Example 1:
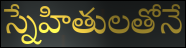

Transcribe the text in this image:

స్నేహితులతోనే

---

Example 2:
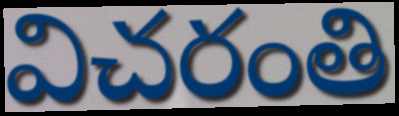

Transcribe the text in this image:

విచరంతి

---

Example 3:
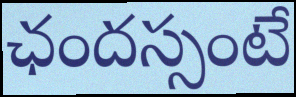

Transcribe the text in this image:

ఛందస్సంటే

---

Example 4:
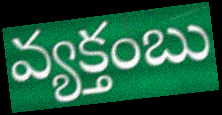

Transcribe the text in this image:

వ్యక్తంబు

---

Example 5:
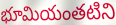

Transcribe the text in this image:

భూమియంతటిని